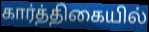
கார்த்திகையில்